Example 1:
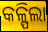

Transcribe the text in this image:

କଳ୍ପିଲା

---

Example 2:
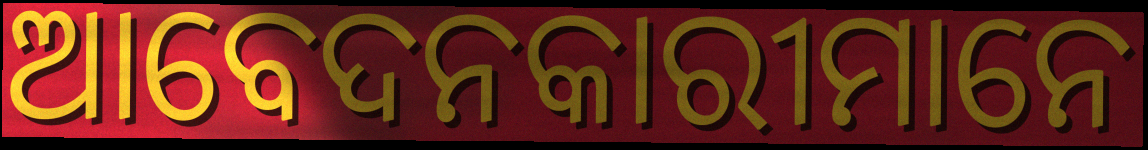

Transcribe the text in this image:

ଆବେଦନକାରୀମାନେ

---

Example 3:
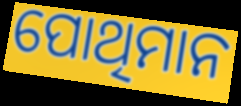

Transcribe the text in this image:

ପୋଥିମାନ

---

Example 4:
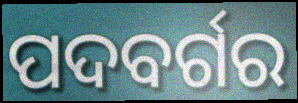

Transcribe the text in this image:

ପଦବର୍ଗର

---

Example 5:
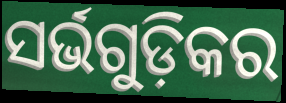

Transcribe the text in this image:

ସର୍ଭଗୁଡ଼ିକର